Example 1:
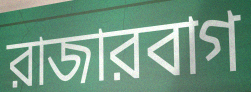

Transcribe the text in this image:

রাজারবাগ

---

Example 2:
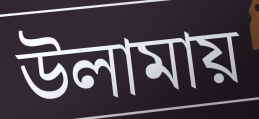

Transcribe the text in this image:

উলামায়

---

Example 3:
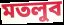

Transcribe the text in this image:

মতলুব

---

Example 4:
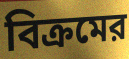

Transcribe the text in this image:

বিক্রমের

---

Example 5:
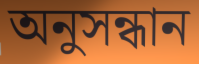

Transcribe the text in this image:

অনুসন্ধান